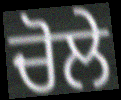
ਚੋਲੇ